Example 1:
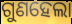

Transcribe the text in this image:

ଗୁଣହେଲା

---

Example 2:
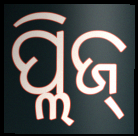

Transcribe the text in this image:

ପ୍ଲିଜ୍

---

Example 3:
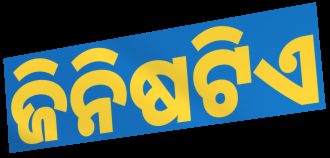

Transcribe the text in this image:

ଜିନିଷଟିଏ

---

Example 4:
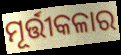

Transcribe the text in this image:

ମୂର୍ତ୍ତୀକଳାର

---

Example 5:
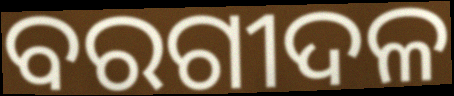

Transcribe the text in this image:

ବରଗୀଦଳ